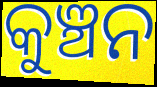
କୁଞ୍ଚନ